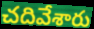
చదివేశారు